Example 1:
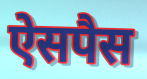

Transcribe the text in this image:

ऐसपैस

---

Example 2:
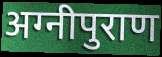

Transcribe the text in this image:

अग्नीपुराण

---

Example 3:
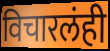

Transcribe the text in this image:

विचारलंही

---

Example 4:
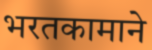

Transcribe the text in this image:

भरतकामाने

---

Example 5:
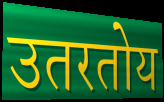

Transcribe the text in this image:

उतरतोय